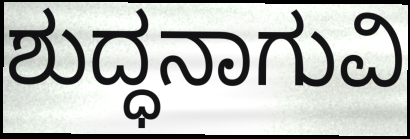
ಶುದ್ಧನಾಗುವಿ